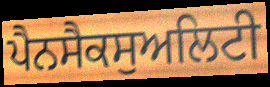
ਪੈਨਸੈਕਸੁਅਲਿਟੀ